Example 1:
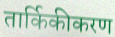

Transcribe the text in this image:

तार्किकीकरण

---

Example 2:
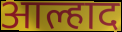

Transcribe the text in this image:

आल्हाद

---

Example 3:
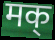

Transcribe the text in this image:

मक्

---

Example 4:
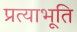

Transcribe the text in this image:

प्रत्याभूति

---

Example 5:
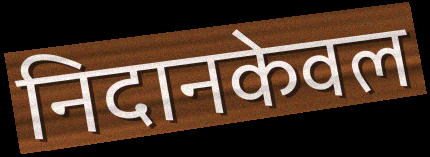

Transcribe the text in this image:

निदानकेवल